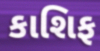
કાશિફ